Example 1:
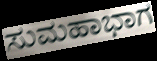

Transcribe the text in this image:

ಸುಮಹಾಭಾಗ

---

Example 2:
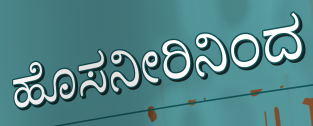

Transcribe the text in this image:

ಹೊಸನೀರಿನಿಂದ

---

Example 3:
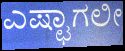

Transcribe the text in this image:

ಎಷ್ಟಾಗಲೀ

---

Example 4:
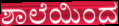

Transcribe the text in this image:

ಶಾಲೆಯಿಂದ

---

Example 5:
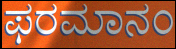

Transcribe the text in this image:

ಫರಮಾನಂ